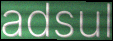
adsul